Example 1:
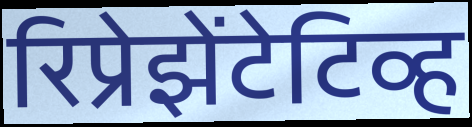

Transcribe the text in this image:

रिप्रेझेंटेटिव्ह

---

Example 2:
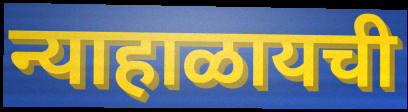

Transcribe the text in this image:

न्याहाळायची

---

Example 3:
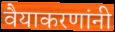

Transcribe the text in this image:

वैयाकरणांनी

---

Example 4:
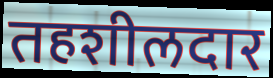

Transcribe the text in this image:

तहशीलदार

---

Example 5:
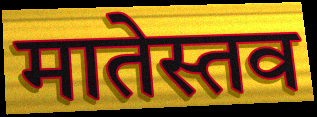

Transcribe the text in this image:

मातेस्तव